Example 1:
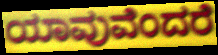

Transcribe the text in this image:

ಯಾವುವೆಂದರೆ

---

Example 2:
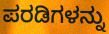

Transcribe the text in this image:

ಪರಡಿಗಳನ್ನು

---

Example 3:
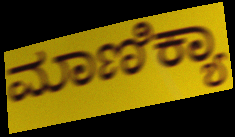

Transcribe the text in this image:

ಮಾಣಿಕ್ಯಾ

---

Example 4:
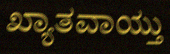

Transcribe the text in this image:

ಖ್ಯಾತವಾಯ್ತು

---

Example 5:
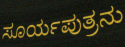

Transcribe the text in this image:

ಸೂರ್ಯಪುತ್ರನು